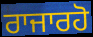
ਰਾਜਾਰਹੋ